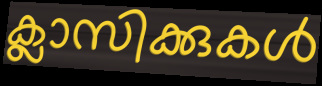
ക്ലാസിക്കുകൾ